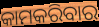
କାମକରିବାର